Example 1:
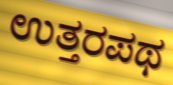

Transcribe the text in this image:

ಉತ್ತರಪಥ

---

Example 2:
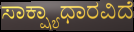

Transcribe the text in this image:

ಸಾಕ್ಷ್ಯಾಧಾರವಿದೆ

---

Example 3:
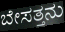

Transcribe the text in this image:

ಬೇಸತ್ತನು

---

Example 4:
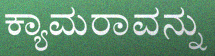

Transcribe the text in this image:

ಕ್ಯಾಮರಾವನ್ನು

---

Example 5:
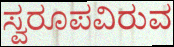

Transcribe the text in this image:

ಸ್ವರೂಪವಿರುವ